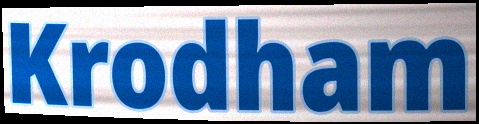
Krodham